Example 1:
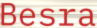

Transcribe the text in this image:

Besra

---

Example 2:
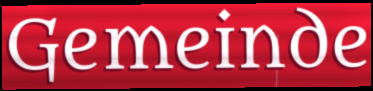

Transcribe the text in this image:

Gemeinde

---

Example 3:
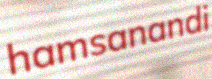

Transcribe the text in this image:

hamsanandi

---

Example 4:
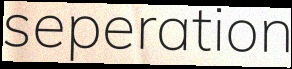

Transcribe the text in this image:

seperation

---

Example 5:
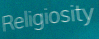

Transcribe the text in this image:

Religiosity